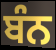
ਬੰਨ